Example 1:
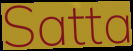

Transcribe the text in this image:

Satta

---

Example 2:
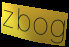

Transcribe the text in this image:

zbog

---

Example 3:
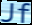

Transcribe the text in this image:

Jf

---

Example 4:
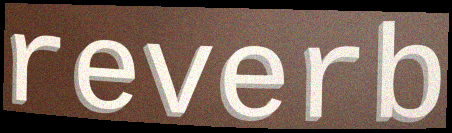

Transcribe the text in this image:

reverb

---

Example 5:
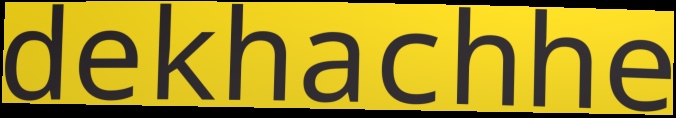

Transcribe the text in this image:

dekhachhe